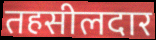
तहसीलदार